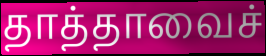
தாத்தாவைச்